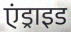
एंड्राइड